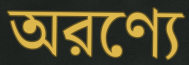
অরণ্যে